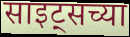
साइट्सच्या